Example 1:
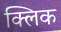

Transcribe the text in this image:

क्लिक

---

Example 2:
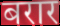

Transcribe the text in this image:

बरार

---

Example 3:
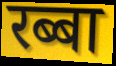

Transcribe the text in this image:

रब्बा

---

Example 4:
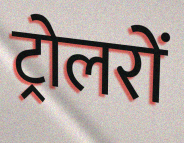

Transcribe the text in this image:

ट्रोलरों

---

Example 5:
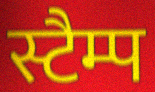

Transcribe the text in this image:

स्टैम्प